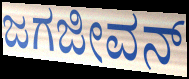
ಜಗಜೀವನ್